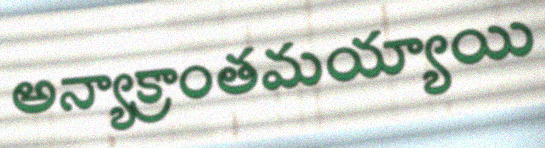
అన్యాక్రాంతమయ్యాయి